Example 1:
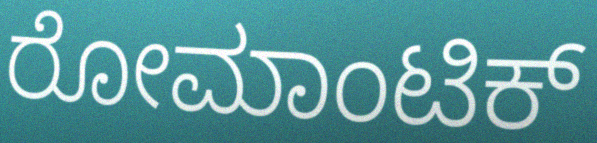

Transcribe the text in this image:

ರೋಮಾಂಟಿಕ್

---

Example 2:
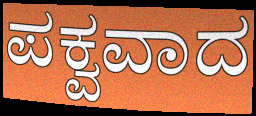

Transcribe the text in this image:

ಪಕ್ವವಾದ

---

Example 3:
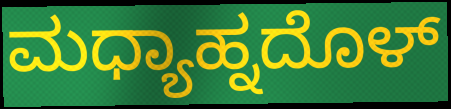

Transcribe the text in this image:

ಮಧ್ಯಾಹ್ನದೊಳ್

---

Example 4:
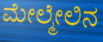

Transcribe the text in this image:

ಮೇಲ್ಮೇಲಿನ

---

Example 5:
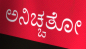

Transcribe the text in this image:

ಅನಿಚ್ಚತೋ